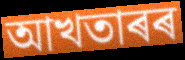
আখতাৰৰ